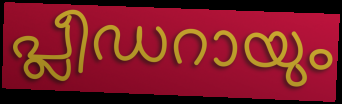
പ്ലീഡറായും